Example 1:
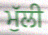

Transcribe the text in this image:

ਮੁੱਲੀ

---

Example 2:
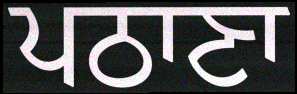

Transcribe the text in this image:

ਪਠਾਣਾ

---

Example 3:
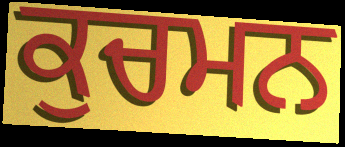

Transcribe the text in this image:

ਕੁਚਮਨ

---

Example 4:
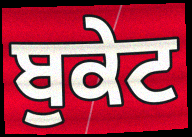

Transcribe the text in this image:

ਬੁਕੇਟ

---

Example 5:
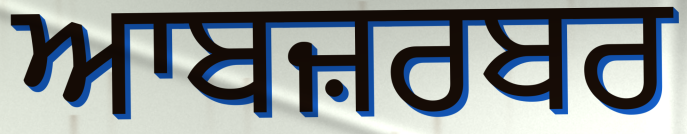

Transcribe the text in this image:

ਆਬਜ਼ਰਬਰ